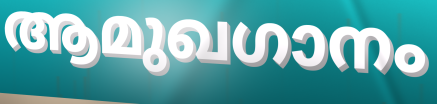
ആമുഖഗാനം